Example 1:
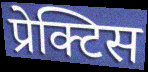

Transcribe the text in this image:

प्रेक्टिस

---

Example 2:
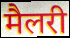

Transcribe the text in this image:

मैलरी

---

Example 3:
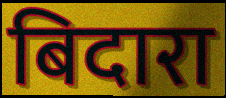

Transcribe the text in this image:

बिदारा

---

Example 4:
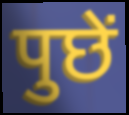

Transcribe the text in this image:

पुछें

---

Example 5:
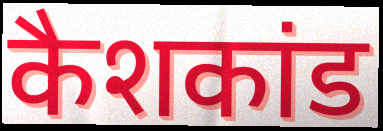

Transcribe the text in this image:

कैशकांड